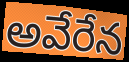
అవేరేన